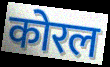
कोरल